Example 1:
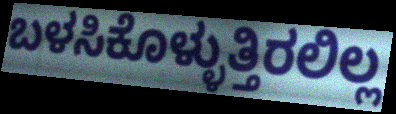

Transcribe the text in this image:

ಬಳಸಿಕೊಳ್ಳುತ್ತಿರಲಿಲ್ಲ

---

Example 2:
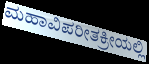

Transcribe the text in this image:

ಮಹಾವಿಪರೀತಕ್ರೀಯಲ್ಲಿ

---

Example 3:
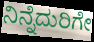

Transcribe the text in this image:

ನಿನ್ನೆದುರಿಗೇ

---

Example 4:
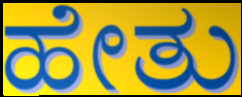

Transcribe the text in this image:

ಹೇತು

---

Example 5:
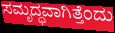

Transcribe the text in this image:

ಸಮೃದ್ಧವಾಗಿತ್ತೆಂದು